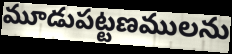
మూడుపట్టణములను